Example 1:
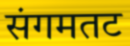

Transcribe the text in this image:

संगमतट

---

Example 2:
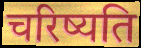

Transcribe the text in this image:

चरिष्यति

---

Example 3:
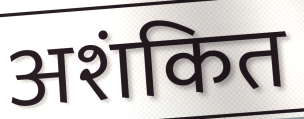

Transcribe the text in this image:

अशंकित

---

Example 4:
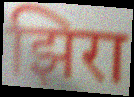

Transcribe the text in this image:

झिरा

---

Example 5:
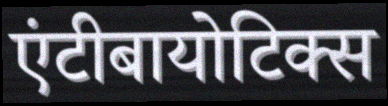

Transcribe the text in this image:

एंटीबायोटिक्स